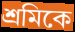
শ্রমিকে